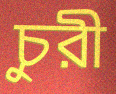
চুরী